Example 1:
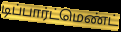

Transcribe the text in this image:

டிப்பார்ட்மெண்ட்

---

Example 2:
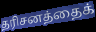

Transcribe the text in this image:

தரிசனத்தைக்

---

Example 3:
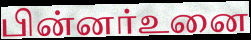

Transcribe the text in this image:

பின்னர்உனை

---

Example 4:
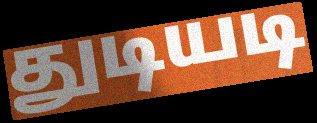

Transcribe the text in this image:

துடியடி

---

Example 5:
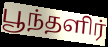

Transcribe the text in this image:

பூந்தளிர்